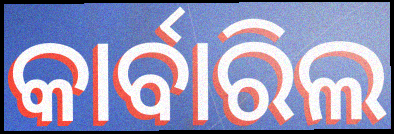
କାର୍ବାରିଲ